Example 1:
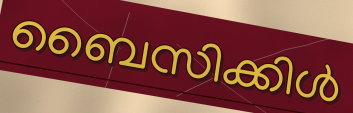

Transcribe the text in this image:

ബൈസിക്കിൾ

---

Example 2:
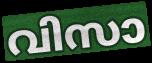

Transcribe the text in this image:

വിസാ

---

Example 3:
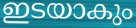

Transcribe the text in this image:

ഇടയാകും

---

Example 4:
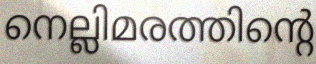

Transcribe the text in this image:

നെല്ലിമരത്തിന്റെ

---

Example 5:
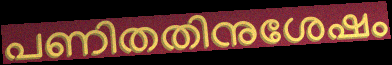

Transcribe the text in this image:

പണിതതിനുശേഷം